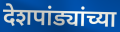
देशपांड्यांच्या